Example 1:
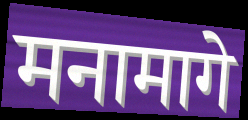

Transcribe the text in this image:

मनामागे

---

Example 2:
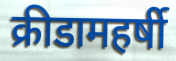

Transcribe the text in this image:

क्रीडामहर्षी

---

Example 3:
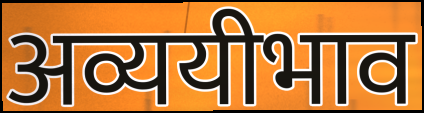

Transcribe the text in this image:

अव्ययीभाव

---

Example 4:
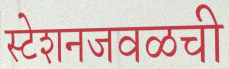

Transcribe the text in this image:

स्टेशनजवळची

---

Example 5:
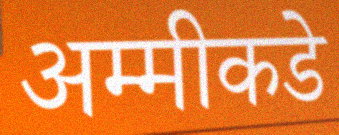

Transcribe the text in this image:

अम्मीकडे